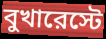
বুখারেস্টে